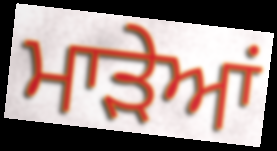
ਮਾੜੇਆਂ